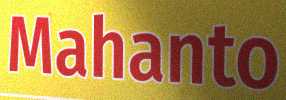
Mahanto